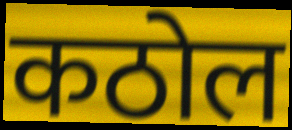
कठोल